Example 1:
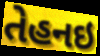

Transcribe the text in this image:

તેહનઇ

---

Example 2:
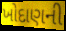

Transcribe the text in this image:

ખોદાણની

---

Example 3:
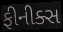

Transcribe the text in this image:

ફીનીક્સ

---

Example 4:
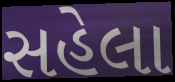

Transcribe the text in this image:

સહેલા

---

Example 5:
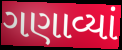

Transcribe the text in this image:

ગણાવ્યાં